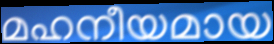
മഹനീയമായ